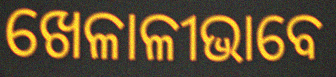
ଖେଳାଳୀଭାବେ